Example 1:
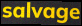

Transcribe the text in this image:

salvage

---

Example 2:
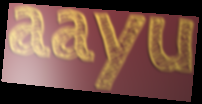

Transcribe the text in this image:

aayu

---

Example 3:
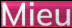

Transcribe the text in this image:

Mieu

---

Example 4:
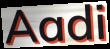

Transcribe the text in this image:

Aadi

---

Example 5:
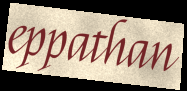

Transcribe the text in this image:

eppathan